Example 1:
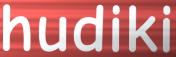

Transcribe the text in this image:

hudiki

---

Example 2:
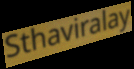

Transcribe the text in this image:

Sthaviralay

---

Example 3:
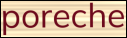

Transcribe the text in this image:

poreche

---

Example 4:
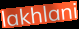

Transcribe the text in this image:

lakhlani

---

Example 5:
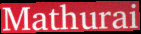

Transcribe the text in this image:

Mathurai